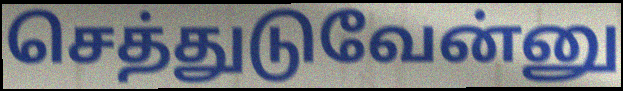
செத்துடுவேன்னு